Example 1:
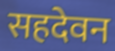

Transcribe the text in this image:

सहदेवन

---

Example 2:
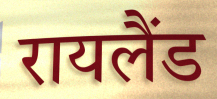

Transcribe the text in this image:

रायलैंड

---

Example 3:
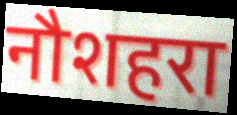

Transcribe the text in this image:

नौशहरा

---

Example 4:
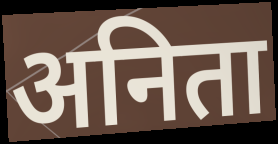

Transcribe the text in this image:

अनिता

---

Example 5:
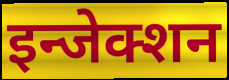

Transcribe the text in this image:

इन्जेक्शन